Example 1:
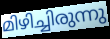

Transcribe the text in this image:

മിഴിച്ചിരുന്നു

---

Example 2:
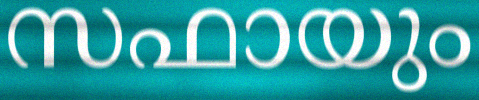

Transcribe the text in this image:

സഫായും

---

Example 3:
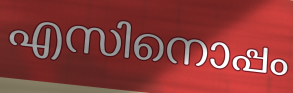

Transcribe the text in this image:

എസിനൊപ്പം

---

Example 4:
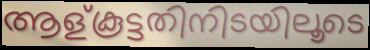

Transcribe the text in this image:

ആള്കൂട്ടതിനിടയിലൂടെ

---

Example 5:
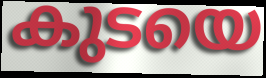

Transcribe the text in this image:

കുടയെ